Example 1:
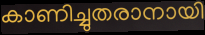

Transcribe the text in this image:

കാണിച്ചുതരാനായി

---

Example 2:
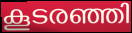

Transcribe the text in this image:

കൂടരഞ്ഞി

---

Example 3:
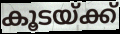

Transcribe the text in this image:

കൂടയ്ക്ക്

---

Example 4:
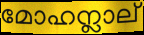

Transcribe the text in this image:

മോഹന്ലാല്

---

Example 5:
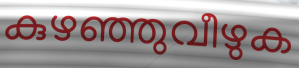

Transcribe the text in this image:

കുഴഞ്ഞുവീഴുക